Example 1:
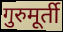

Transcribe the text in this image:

गुरुमूर्ती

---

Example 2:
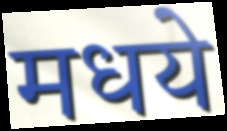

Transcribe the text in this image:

मधये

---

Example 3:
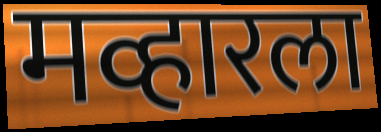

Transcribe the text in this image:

मव्हारला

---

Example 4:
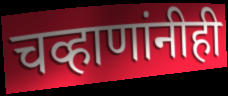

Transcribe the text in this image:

चव्हाणांनीही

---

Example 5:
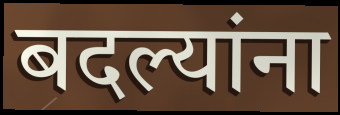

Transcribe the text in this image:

बदल्यांना